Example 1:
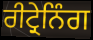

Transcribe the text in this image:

ਰੀਟ੍ਰੇਨਿੰਗ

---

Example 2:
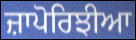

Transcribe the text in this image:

ਜ਼ਾਪੋਰਿਝੀਆ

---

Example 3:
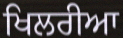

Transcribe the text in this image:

ਖਿਲਰੀਆ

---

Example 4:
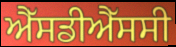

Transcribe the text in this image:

ਐੱਸਡੀਐੱਸਸੀ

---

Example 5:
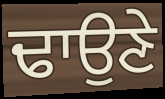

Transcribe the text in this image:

ਢਾਉਣੇ